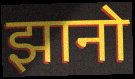
झानो